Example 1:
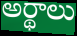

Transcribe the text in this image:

అర్థాలు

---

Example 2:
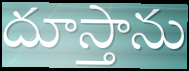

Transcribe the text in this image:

దూస్తాను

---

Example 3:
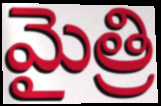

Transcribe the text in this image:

మైత్రి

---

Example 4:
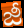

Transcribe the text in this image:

జీ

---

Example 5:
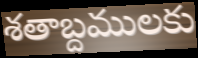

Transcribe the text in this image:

శతాబ్దములకు